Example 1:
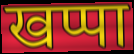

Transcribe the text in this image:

खप्पा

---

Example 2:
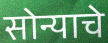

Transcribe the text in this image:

सोन्याचे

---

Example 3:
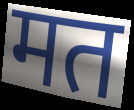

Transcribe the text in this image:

मत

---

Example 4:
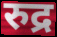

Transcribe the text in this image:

रुद्र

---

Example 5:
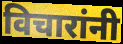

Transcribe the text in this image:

विचारांनी